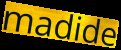
madide